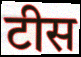
टीस